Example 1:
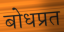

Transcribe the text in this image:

बोधप्रत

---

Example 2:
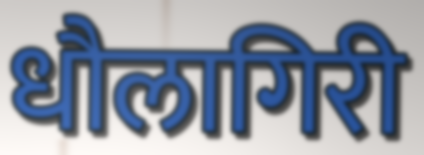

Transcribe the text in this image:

धौलागिरी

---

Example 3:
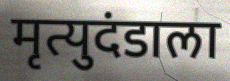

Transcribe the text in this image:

मृत्युदंडाला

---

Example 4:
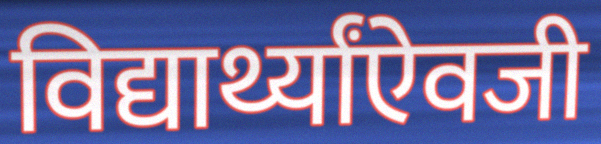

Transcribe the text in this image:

विद्यार्थ्यांऐवजी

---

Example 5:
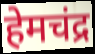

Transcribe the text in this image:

हेमचंद्र